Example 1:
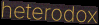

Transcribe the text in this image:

heterodox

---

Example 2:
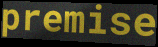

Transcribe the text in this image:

premise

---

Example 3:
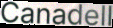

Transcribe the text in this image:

Canadell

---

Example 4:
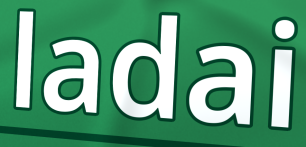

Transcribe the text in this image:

ladai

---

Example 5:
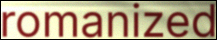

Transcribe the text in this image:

romanized